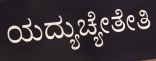
ಯದ್ಯುಚ್ಯೇತೇತಿ